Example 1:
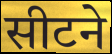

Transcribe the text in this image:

सीटने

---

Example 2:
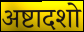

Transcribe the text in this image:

अष्टादशो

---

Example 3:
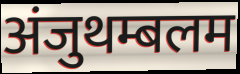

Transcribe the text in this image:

अंजुथम्बलम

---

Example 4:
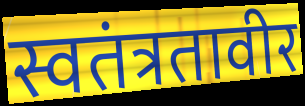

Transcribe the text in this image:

स्वतंत्रतावीर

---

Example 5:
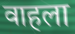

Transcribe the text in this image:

वाहला